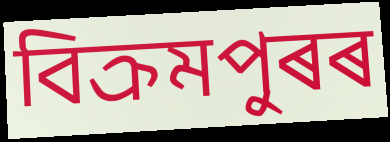
বিক্ৰমপুৰৰ